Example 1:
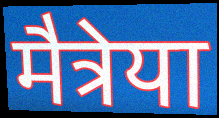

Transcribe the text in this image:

मैत्रेया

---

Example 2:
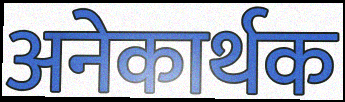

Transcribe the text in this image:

अनेकार्थक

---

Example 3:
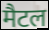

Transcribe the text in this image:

मैटल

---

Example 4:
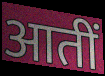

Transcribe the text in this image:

आतीं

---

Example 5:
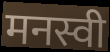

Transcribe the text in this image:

मनस्वी